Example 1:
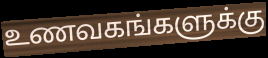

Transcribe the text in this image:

உணவகங்களுக்கு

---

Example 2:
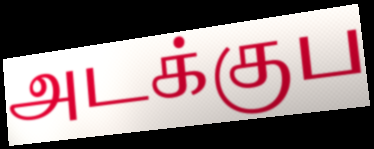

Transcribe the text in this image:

அடக்குப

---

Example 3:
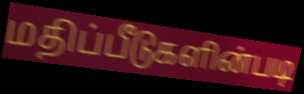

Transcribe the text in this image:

மதிப்பீடுகளின்படி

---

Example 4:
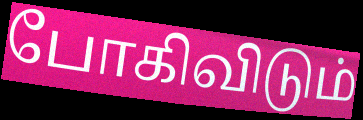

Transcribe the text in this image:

போகிவிடும்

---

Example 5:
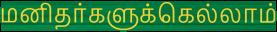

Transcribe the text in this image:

மனிதர்களுக்கெல்லாம்